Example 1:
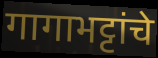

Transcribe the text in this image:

गागाभट्टांचे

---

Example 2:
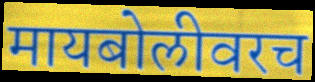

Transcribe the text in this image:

मायबोलीवरच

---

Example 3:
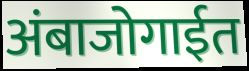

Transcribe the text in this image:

अंबाजोगाईत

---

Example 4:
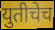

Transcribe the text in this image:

युतीचेच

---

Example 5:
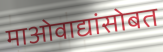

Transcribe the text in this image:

माओवाद्यांसोबत